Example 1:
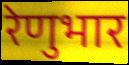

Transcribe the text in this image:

रेणुभार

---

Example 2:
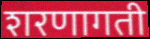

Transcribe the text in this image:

शरणागती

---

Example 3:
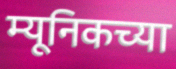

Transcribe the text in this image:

म्यूनिकच्या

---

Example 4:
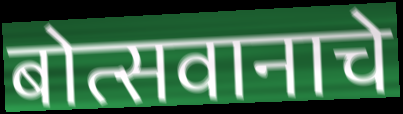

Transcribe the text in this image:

बोत्सवानाचे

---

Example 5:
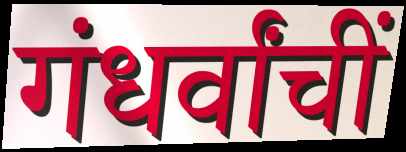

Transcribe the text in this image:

गंधर्वांचीं